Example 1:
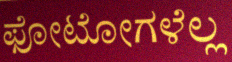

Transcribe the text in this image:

ಫೋಟೋಗಳೆಲ್ಲ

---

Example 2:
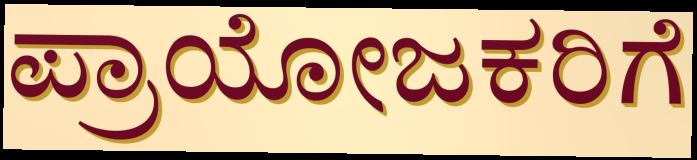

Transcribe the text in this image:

ಪ್ರಾಯೋಜಕರಿಗೆ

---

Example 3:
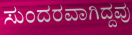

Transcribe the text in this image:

ಸುಂದರವಾಗಿದ್ದವು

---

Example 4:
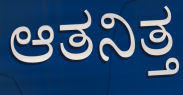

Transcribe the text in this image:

ಆತನಿತ್ತ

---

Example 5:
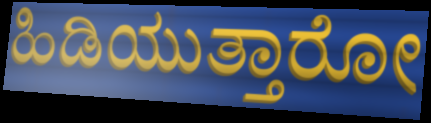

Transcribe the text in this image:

ಹಿಡಿಯುತ್ತಾರೋ